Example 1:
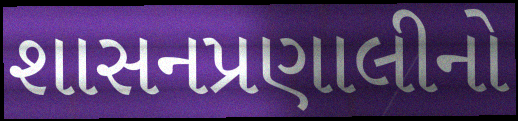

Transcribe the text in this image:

શાસનપ્રણાલીનો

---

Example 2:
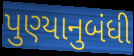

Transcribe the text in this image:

પુણ્યાનુબંધી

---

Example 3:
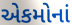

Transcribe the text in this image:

એકમોનાં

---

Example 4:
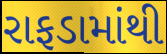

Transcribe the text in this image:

રાફડામાંથી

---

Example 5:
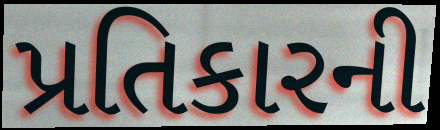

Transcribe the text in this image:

પ્રતિકારની